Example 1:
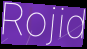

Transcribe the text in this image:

Rojid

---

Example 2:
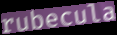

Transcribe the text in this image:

rubecula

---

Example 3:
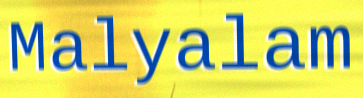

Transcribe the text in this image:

Malyalam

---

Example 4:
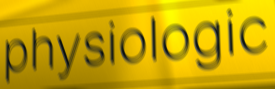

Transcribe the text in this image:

physiologic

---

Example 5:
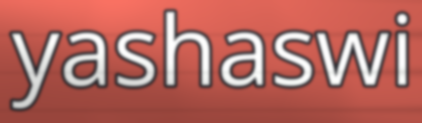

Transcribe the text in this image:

yashaswi